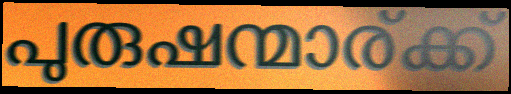
പുരുഷന്മാര്ക്ക്